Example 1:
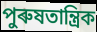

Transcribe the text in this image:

পুৰুষতান্ত্ৰিক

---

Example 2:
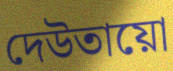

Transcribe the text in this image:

দেউতায়ো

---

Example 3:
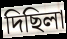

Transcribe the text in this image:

দিছিলা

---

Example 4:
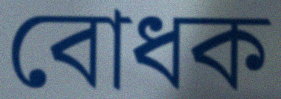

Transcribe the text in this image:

বোধক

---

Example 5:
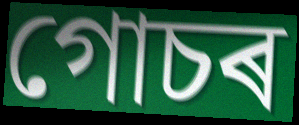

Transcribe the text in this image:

গোচৰ